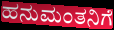
ಹನುಮಂತನಿಗೆ